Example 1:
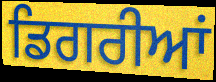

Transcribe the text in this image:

ਡਿਗਰੀਆਂ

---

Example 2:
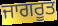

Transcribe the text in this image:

ਜਾਗਰੂਤ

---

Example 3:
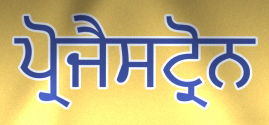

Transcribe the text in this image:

ਪ੍ਰੋਜੈਸਟ੍ਰੋਨ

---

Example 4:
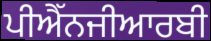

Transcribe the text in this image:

ਪੀਐੱਨਜੀਆਰਬੀ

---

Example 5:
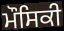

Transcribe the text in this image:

ਮੌਸਿਕੀ